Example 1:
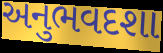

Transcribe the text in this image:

અનુભવદશા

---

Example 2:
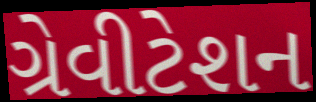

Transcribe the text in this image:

ગ્રેવીટેશન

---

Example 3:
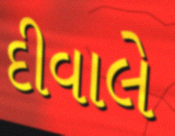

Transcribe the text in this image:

દીવાલે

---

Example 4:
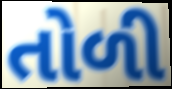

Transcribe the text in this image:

તોળી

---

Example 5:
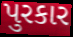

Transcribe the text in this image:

પુરકાર